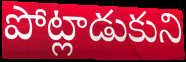
పోట్లాడుకుని